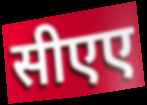
सीएए